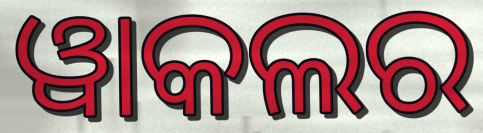
ୱାକଲର